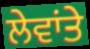
ਲੇਵਾਂਤੇ